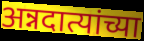
अन्नदात्यांच्या